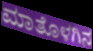
ಮಾತೊಳಗಿನ